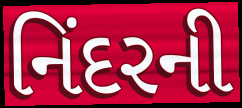
નિંદરની